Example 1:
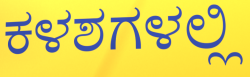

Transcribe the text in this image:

ಕಳಶಗಳಲ್ಲಿ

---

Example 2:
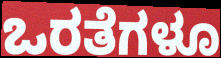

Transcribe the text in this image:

ಒರತೆಗಳೂ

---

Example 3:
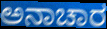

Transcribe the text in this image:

ಅನಾಚಾರ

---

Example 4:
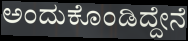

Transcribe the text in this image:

ಅಂದುಕೊಂಡಿದ್ದೇನೆ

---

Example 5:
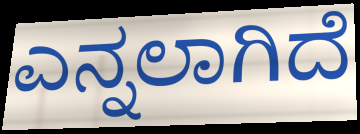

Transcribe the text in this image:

ಎನ್ನಲಾಗಿದೆ